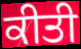
ਕੀਤੀ